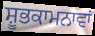
ਸ਼ੂਭਕਾਮਨਾਵਾਂ